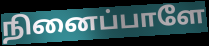
நினைப்பாளே